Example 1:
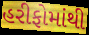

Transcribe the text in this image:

હરીફોમાંથી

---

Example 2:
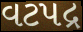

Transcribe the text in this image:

વટપદ્ર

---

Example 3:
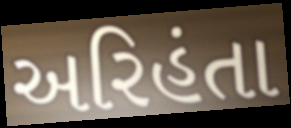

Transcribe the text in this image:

અરિહંતા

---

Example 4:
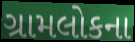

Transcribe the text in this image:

ગ્રામલોકના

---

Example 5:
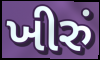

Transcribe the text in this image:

ખીરું